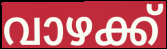
വാഴക്ക്